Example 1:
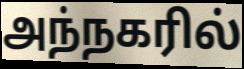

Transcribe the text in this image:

அந்நகரில்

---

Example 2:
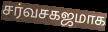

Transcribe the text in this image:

சர்வசகஜமாக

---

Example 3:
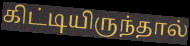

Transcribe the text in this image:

கிட்டியிருந்தால்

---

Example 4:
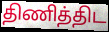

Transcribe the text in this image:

திணித்திட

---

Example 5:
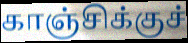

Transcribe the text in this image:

காஞ்சிக்குச்